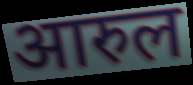
आरुल